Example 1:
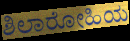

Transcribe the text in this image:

ಶಿಲಾರೋಹಿಯ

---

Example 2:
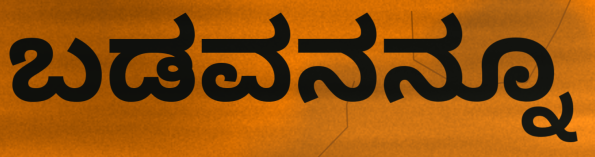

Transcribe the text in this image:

ಬಡವನನ್ನೂ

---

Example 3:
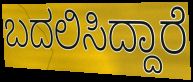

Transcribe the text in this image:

ಬದಲಿಸಿದ್ದಾರೆ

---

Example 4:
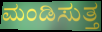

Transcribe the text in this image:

ಮಂಡಿಸುತ್ತ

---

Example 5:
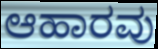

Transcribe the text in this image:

ಆಹಾರವು